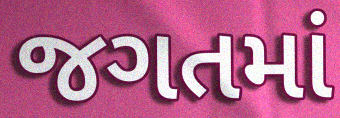
જગતમાં